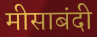
मीसाबंदी